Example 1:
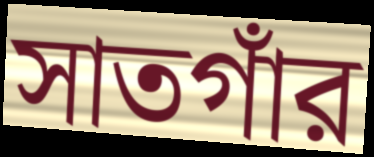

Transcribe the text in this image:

সাতগাঁর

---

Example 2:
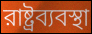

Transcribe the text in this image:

রাষ্ট্রব্যবস্থা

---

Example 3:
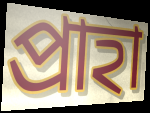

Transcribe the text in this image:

প্রাহা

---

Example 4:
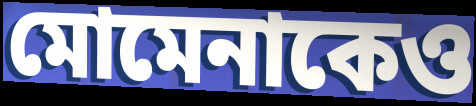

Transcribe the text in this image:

মোমেনাকেও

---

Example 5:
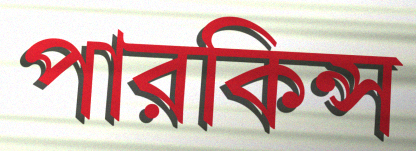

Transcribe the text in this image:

পারকিন্স